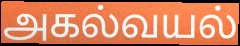
அகல்வயல்